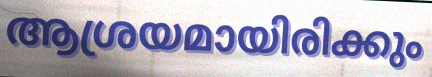
ആശ്രയമായിരിക്കും